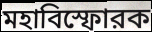
মহাবিস্ফোরক